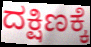
ದಕ್ಷಿಣಕ್ಕೆ